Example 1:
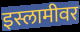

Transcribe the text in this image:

इस्लामीवर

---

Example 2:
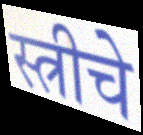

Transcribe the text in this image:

स्त्रीचे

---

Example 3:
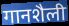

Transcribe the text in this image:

गानशैली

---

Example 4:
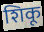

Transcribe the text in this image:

शिकू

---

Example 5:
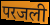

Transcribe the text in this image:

परजली